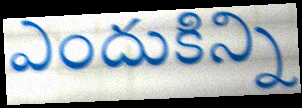
ఎందుకిన్ని